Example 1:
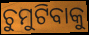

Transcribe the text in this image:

ଚୁମୁଟିବାକୁ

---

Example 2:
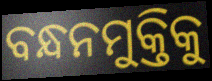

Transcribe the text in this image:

ବନ୍ଧନମୁକ୍ତିକୁ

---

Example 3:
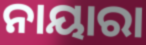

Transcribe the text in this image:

ନାୟାରା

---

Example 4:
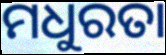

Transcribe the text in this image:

ମଧୁରତା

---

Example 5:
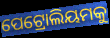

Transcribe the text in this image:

ପେଟ୍ରୋଲିୟମକୁ